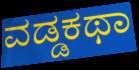
ವಡ್ಡಕಥಾ